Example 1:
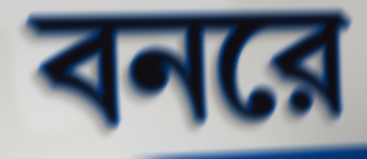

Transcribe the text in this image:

বনরে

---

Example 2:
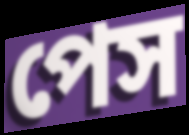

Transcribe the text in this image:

পেস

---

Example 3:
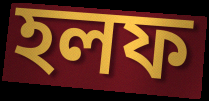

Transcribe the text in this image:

হলফ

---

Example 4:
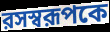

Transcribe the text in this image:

রসস্বরূপকে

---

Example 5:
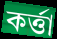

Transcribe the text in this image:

কর্ত্তা